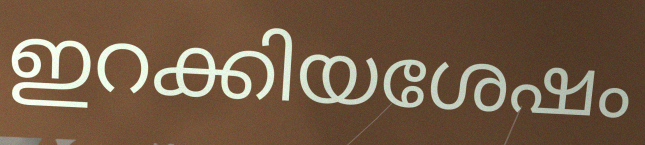
ഇറക്കിയശേഷം